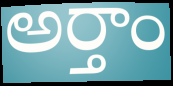
అర్తాం